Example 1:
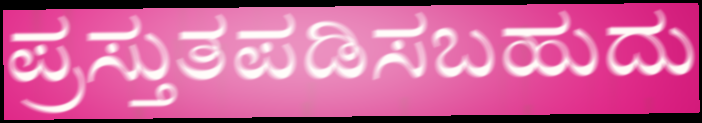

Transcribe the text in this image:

ಪ್ರಸ್ತುತಪಡಿಸಬಹುದು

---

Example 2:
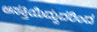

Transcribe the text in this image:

ಆಸಕ್ತಿಯಿದ್ದುದರಿಂದ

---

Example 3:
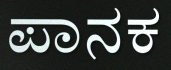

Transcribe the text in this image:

ಪಾನಕ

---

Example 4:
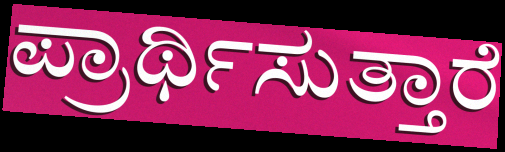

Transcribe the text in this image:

ಪ್ರಾರ್ಥಿಸುತ್ತಾರೆ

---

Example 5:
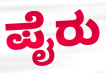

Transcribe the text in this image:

ಪೈರು